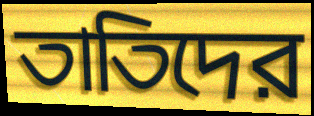
তাতিদের